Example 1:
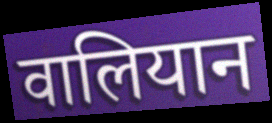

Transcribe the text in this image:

वालियान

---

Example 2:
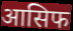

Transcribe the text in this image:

आसिफ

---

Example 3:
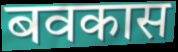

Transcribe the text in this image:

बवकास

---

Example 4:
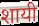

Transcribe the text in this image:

शायी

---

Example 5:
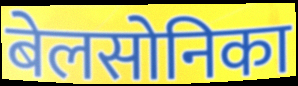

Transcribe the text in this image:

बेलसोनिका